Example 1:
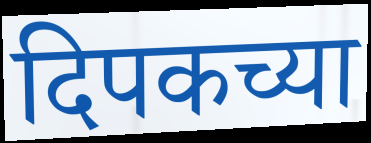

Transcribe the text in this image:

दिपकच्या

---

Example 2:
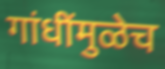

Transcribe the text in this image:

गांधींमुळेच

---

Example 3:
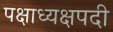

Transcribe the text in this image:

पक्षाध्यक्षपदी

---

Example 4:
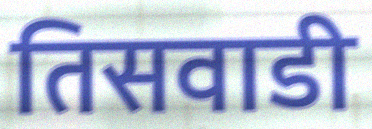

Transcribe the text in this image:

तिसवाडी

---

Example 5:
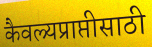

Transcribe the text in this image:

कैवल्यप्राप्तीसाठी